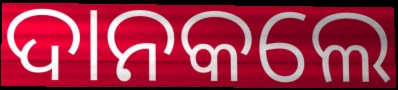
ଦାନକଲେ